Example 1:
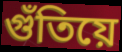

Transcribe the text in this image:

গুঁতিয়ে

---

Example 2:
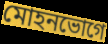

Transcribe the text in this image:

মোহনভোগে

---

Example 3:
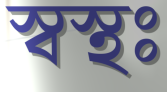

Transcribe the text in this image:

স্বস্থঃ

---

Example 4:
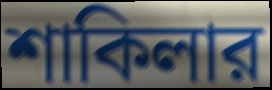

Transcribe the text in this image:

শাকিলার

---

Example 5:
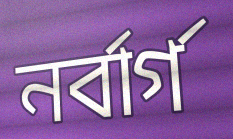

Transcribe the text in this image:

নর্বার্গ